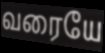
வரையே